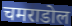
चमराडोल